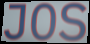
JOS